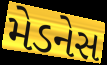
મેડનેસ